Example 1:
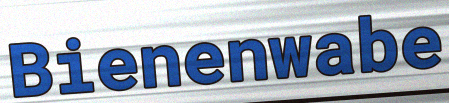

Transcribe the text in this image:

Bienenwabe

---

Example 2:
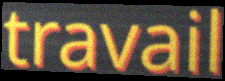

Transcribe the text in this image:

travail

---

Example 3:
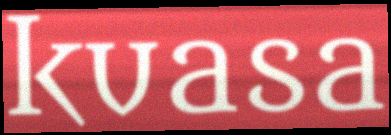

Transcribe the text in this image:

kuasa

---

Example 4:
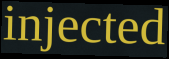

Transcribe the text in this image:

injected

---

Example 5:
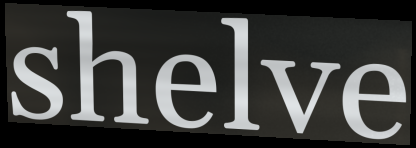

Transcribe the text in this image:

shelve